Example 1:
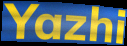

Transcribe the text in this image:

Yazhi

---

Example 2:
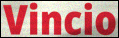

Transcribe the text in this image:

Vincio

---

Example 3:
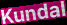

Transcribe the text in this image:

Kundal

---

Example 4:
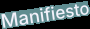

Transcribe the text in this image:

Manifiesto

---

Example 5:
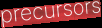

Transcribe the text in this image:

precursors